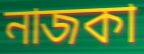
নাজকা